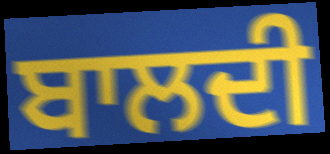
ਬਾਲਦੀ